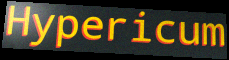
Hypericum